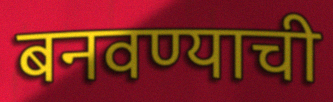
बनवण्याची